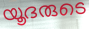
യൂദരുടെ